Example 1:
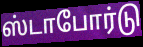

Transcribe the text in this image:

ஸ்டாபோர்டு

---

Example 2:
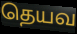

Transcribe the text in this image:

தெயவ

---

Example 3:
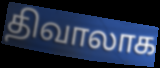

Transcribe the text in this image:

திவாலாக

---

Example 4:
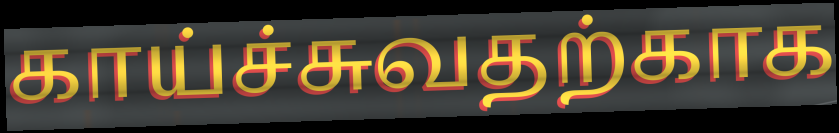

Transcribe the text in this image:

காய்ச்சுவதற்காக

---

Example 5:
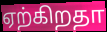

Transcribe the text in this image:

ஏற்கிறதா